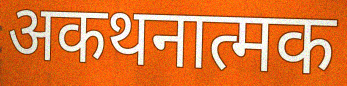
अकथनात्मक